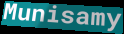
Munisamy